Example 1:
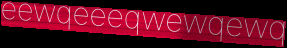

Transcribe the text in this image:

eewqeeeqwewqewq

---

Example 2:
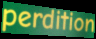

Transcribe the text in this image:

perdition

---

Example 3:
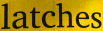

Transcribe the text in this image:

latches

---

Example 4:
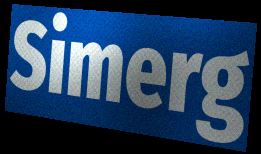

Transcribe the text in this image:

Simerg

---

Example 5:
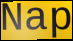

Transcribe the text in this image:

Nap